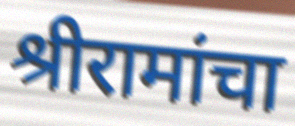
श्रीरामांचा